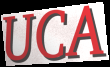
UCA